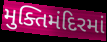
મુક્તિમંદિરમાં